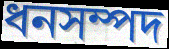
ধনসম্পদ